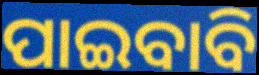
ପାଇବାବି